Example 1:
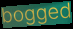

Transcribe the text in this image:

bogged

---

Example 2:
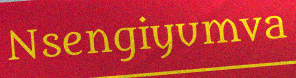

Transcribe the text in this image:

Nsengiyumva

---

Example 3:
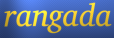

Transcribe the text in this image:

rangada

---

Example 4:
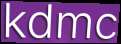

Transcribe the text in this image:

kdmc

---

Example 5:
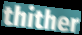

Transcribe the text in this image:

thither